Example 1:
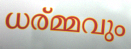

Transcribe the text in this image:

ധര്മ്മവും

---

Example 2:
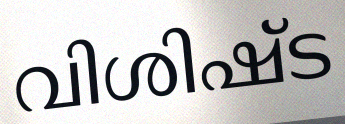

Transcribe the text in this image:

വിശിഷ്ട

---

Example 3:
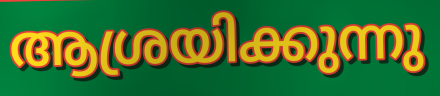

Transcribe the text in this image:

ആശ്രയിക്കുന്നു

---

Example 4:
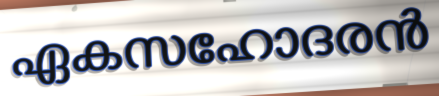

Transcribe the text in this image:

ഏകസഹോദരൻ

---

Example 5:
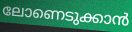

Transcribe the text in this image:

ലോണെടുക്കാൻ